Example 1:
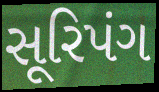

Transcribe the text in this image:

સૂરિપંગ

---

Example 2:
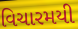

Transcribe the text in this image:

વિચારમયી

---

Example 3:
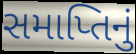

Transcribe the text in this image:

સમાપ્તિનું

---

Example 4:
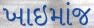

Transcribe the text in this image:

ખાઇમાંજ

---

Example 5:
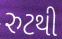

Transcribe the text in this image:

રુટથી